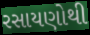
રસાયણોથી